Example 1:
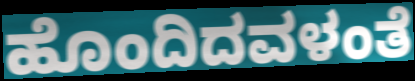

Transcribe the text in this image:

ಹೊಂದಿದವಳಂತೆ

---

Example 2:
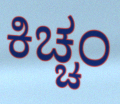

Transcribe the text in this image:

ಕಿಚ್ಚಂ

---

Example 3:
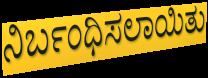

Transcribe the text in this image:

ನಿರ್ಬಂಧಿಸಲಾಯಿತು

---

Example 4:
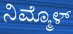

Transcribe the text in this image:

ನಿಮ್ಮೊಳ್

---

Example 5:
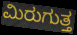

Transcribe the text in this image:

ಮಿರುಗುತ್ತ